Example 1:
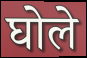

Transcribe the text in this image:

घोले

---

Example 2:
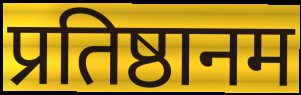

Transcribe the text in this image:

प्रतिष्ठानम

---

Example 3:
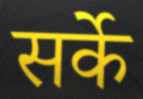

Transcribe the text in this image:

सर्के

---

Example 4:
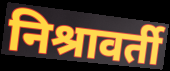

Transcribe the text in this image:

निश्रावर्ती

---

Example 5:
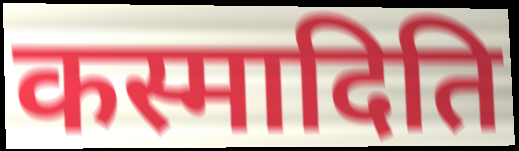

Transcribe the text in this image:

कस्मादिति